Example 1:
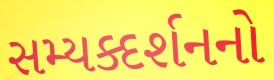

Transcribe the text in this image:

સમ્યક્દર્શનનો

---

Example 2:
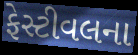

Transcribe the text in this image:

ફેસ્ટીવલના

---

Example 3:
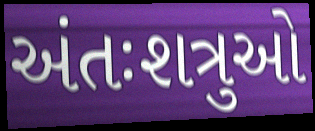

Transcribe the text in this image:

અંતઃશત્રુઓ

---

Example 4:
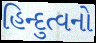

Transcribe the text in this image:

હિન્દુત્વનો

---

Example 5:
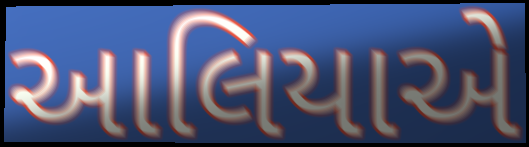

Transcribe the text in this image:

આલિયાએ